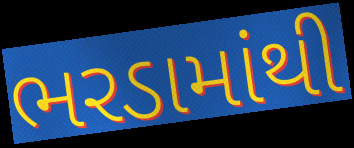
ભરડામાંથી